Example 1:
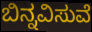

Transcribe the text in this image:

ಬಿನ್ನವಿಸುವೆ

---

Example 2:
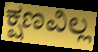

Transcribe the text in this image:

ಕ್ಷಣವಿಲ್ಲ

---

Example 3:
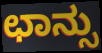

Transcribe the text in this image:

ಛಾನ್ಸು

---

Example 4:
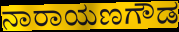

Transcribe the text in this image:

ನಾರಾಯಣಗೌಡ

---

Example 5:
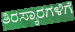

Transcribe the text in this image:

ತಿರಸ್ಕಾರಗಳಿಗೆ